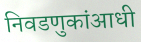
निवडणुकांआधी